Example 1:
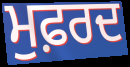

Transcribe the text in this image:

ਮੁਫ਼ਰਦ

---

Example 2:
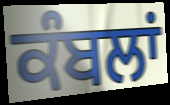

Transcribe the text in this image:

ਕੰਬਲਾਂ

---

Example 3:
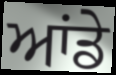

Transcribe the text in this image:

ਆਂਡੇ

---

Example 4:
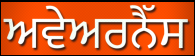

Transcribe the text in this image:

ਅਵੇਅਰਨੈੱਸ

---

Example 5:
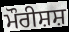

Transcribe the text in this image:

ਮੌਰੀਸ਼ਸ਼